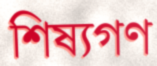
শিষ্যগণ